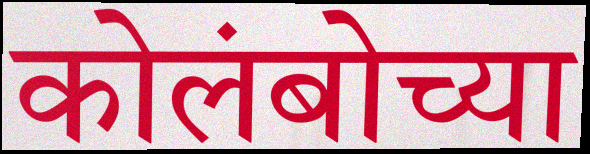
कोलंबोच्या